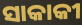
ସାକାକୀ